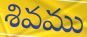
శివము